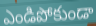
ఎండిపోకుండా